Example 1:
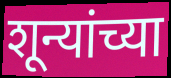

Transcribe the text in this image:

शून्यांच्या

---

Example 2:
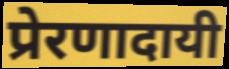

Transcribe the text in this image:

प्रेरणादायी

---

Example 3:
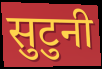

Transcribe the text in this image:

सुटुनी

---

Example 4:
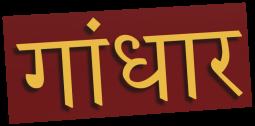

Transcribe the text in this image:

गांधार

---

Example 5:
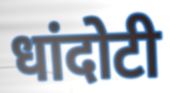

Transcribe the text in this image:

धांदोटी